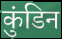
कुंडिन